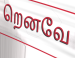
றெனவே